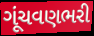
ગૂંચવણભરી